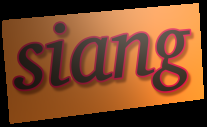
siang